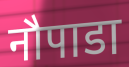
नौपाडा